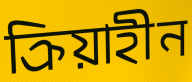
ক্রিয়াহীন